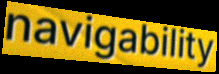
navigability